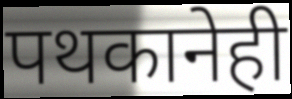
पथकानेही